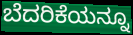
ಬೆದರಿಕೆಯನ್ನೂ